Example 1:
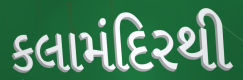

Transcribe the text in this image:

કલામંદિરથી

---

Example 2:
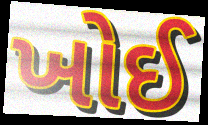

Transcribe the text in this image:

ખોઈ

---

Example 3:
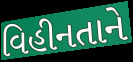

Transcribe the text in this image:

વિહીનતાને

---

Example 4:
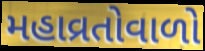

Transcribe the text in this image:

મહાવ્રતોવાળો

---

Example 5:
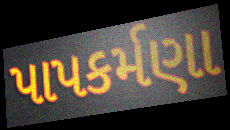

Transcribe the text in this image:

પાપકર્મણા